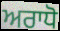
ਅਰਾਧੋ